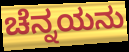
ಚೆನ್ನಯನು